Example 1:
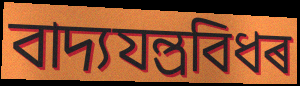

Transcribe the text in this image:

বাদ্যযন্ত্ৰবিধৰ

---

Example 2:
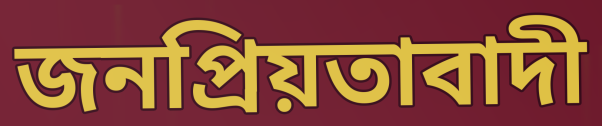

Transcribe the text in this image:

জনপ্ৰিয়তাবাদী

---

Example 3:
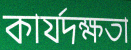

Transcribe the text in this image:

কাৰ্যদক্ষতা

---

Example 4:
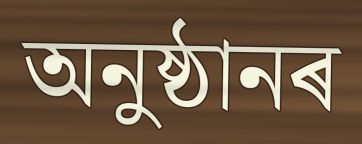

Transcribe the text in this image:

অনুষ্ঠানৰ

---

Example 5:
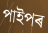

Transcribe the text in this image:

পাইপৰ